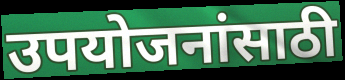
उपयोजनांसाठी